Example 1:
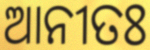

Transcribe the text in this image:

ଆନୀତଃ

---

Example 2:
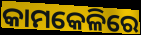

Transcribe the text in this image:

କାମକେଳିରେ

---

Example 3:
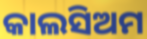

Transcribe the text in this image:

କାଲସିଅମ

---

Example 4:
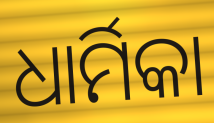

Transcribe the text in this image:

ଧାର୍ମିକା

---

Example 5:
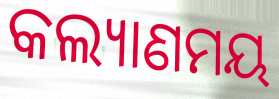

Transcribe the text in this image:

କଲ୍ୟାଣମୟ